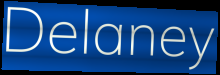
Delaney